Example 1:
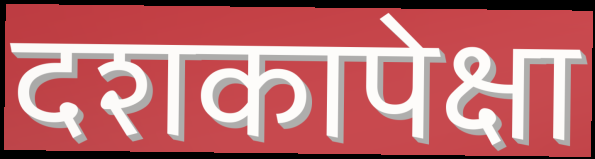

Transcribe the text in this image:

दशकापेक्षा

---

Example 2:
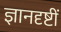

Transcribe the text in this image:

ज्ञानदृष्टीं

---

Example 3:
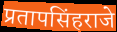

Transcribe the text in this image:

प्रतापसिंहराजे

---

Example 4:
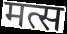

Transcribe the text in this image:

मत्स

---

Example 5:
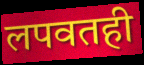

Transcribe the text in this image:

लपवतही